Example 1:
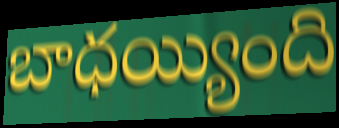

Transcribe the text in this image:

బాధయ్యింది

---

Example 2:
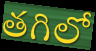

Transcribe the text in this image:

తగిలో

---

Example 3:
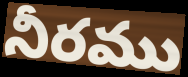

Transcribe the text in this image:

నీరము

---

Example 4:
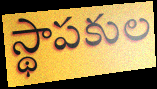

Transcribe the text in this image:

స్థాపకుల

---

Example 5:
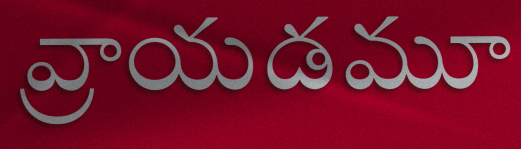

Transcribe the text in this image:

వ్రాయడమూ